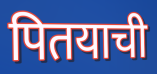
पितयाची